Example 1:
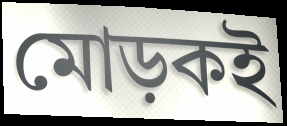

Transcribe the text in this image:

মোড়কই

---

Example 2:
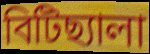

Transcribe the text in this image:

বিটিছ্যালা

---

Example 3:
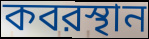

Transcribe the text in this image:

কবরস্থান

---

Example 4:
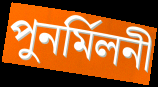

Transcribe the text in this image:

পুনর্মিলনী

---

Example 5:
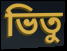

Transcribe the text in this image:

ভিতু